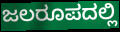
ಜಲರೂಪದಲ್ಲಿ